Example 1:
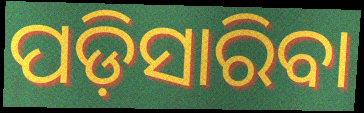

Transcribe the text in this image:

ପଡ଼ିସାରିବା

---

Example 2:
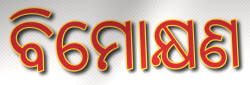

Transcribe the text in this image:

ବିମୋକ୍ଷଣ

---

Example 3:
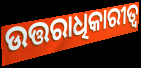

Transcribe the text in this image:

ଉତ୍ତରାଧିକାରୀତ୍ଵ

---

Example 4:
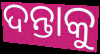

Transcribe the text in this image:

ଦନ୍ତାକୁ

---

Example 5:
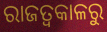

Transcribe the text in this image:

ରାଜତ୍ଵକାଳରୁ